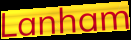
Lanham